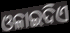
ଓଳାଇଦିଏ